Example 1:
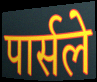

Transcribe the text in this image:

पार्सले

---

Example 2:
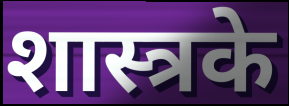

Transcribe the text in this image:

शास्त्रके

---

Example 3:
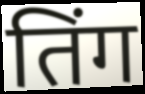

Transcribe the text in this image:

तिंग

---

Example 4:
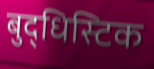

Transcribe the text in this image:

बुद्धिस्टिक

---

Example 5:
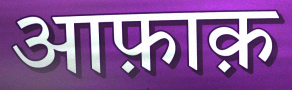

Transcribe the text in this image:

आफ़ाक़